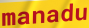
manadu